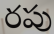
రపు